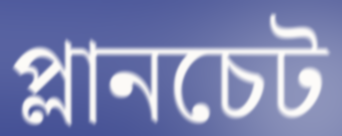
প্লানচেট